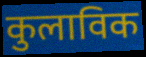
कुलाविक